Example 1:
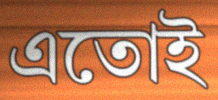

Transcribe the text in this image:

এতোই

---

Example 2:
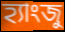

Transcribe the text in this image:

হ্যাংজু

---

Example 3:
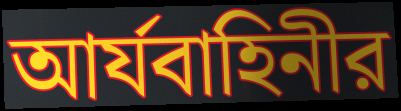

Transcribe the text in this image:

আর্যবাহিনীর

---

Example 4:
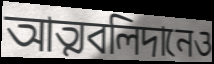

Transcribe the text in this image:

আত্মবলিদানেও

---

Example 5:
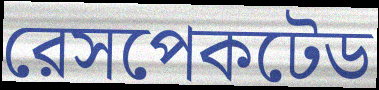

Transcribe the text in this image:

রেসপেকটেড